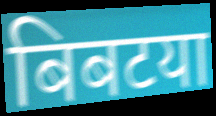
बिबटया